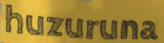
huzuruna